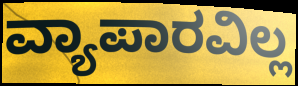
ವ್ಯಾಪಾರವಿಲ್ಲ